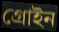
গ্রোইন